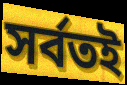
সর্বতই